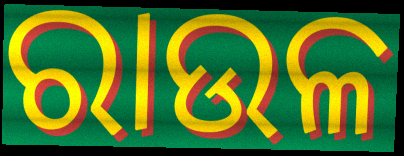
ରାଉଳ